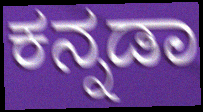
ಕನ್ನಡಾ